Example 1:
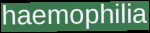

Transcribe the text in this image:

haemophilia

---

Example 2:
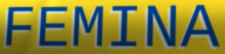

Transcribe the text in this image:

FEMINA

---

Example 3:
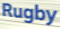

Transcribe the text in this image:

Rugby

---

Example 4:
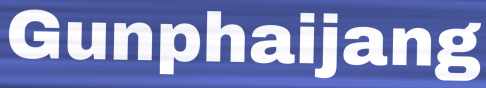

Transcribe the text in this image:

Gunphaijang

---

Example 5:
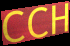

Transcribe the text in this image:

CCH